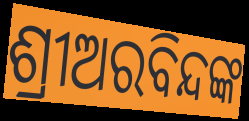
ଶ୍ରୀଅରବିନ୍ଦଙ୍କ